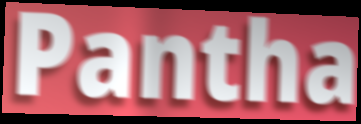
Pantha